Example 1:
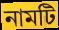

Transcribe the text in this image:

নামটি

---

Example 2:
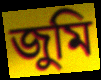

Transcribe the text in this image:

জুমি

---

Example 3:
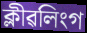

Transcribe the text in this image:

ক্লীৱলিংগ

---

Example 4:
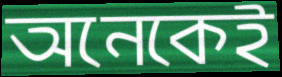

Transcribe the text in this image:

অনেকেই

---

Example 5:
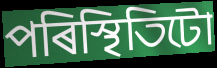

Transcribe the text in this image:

পৰিস্থিতিটো